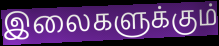
இலைகளுக்கும்